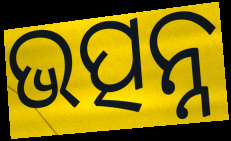
ଭତ୍ପନ୍ନ